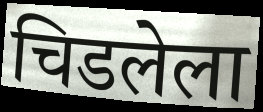
चिडलेला